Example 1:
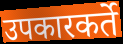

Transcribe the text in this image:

उपकारकर्ते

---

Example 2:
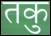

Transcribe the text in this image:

तकु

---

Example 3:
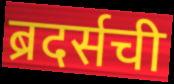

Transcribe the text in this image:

ब्रदर्सची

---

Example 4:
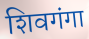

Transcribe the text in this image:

शिवगंगा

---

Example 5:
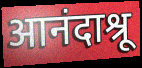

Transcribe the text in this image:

आनंदाश्रू